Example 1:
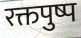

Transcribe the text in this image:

रक्तपुष्प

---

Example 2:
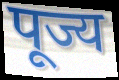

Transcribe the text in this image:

पूज्य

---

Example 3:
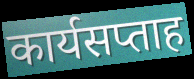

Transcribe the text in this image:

कार्यसप्ताह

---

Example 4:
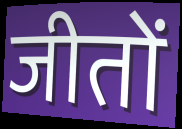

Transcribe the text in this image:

जीतों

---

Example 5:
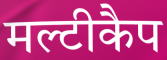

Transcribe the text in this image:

मल्‍टीकैप